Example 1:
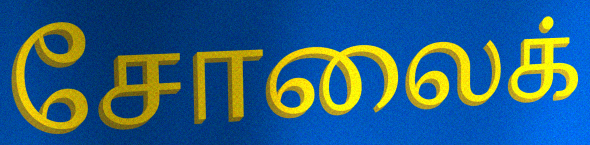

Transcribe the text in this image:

சோலைக்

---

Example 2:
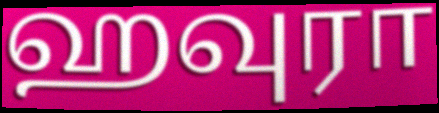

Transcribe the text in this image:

ஹவுரா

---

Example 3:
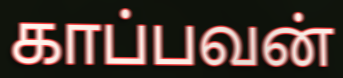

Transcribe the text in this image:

காப்பவன்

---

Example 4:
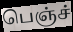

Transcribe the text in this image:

பெஞ்ச்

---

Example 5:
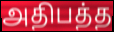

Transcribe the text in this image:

அதிபத்த